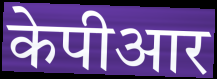
केपीआर